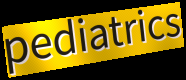
pediatrics